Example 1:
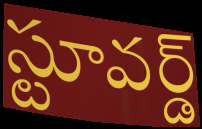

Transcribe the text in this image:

స్టూవర్డ్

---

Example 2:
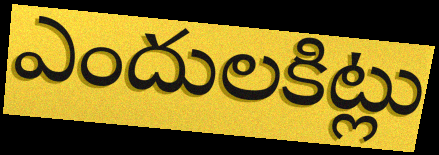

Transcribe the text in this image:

ఎందులకిట్లు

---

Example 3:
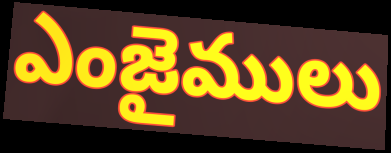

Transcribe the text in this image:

ఎంజైములు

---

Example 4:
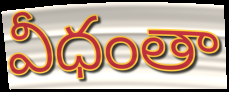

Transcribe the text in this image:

వీధంతా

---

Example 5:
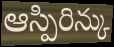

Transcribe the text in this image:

ఆస్పిరిన్కు